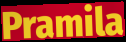
Pramila